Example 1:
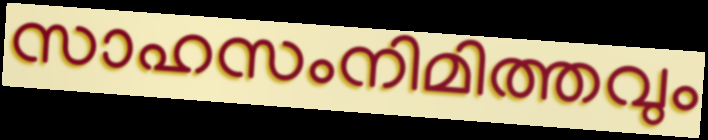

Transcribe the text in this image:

സാഹസംനിമിത്തവും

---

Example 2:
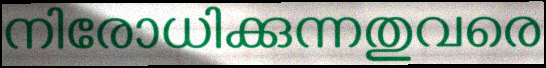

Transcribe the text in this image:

നിരോധിക്കുന്നതുവരെ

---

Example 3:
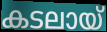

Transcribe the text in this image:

കടലായ്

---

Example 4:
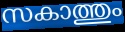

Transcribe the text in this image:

സകാത്തും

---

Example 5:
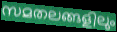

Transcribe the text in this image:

സമതലങ്ങളിലും